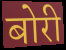
बोरी